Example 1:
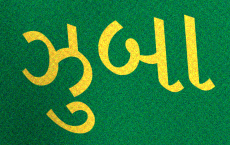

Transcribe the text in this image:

ઝુબા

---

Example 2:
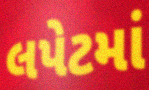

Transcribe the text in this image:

લપેટમાં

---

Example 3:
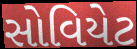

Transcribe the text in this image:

સોવિયેટ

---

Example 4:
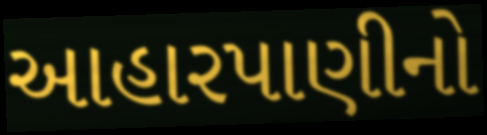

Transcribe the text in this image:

આહારપાણીનો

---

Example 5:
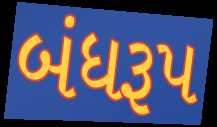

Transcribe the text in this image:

બંધરૂપ